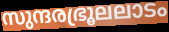
സുന്ദരഭ്രൂലലാടം